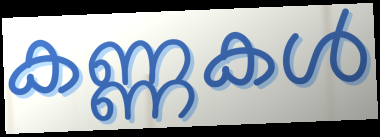
കണ്ണകൾ